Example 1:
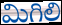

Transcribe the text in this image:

మిగిలి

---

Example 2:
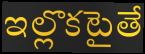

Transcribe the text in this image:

ఇల్లొకటైతే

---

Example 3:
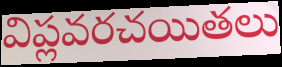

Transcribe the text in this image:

విప్లవరచయితలు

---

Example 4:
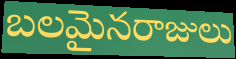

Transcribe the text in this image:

బలమైనరాజులు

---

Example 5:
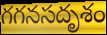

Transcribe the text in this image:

గగనసదృశం